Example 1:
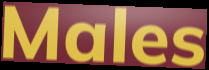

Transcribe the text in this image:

Males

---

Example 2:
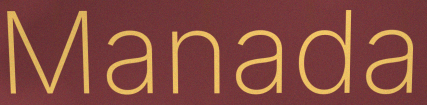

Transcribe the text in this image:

Manada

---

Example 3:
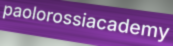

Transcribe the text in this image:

paolorossiacademy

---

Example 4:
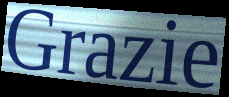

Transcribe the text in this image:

Grazie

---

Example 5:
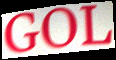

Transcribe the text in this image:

GOL